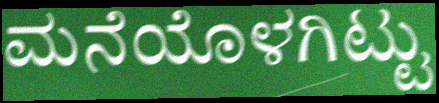
ಮನೆಯೊಳಗಿಟ್ಟು